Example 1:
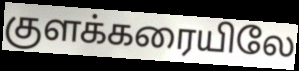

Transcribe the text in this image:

குளக்கரையிலே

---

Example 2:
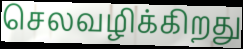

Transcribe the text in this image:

செலவழிக்கிறது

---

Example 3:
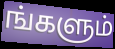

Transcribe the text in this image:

ங்களும்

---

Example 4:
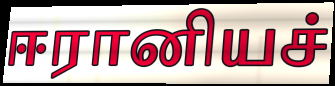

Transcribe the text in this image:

ஈரானியச்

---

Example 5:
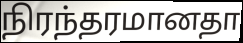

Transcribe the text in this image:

நிரந்தரமானதா